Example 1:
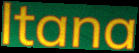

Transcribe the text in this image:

Itana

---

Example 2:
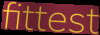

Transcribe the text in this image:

fittest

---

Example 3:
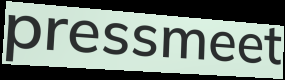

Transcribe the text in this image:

pressmeet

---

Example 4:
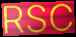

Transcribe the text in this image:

RSC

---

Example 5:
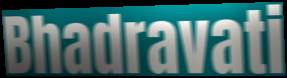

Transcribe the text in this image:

Bhadravati